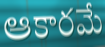
ఆకారమే